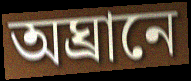
অঘ্রানে